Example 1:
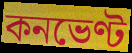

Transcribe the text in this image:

কনভেণ্ট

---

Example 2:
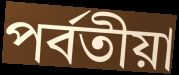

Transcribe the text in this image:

পৰ্বতীয়া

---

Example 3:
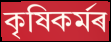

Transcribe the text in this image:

কৃষিকৰ্মৰ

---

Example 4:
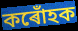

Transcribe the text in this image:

কৰোঁহক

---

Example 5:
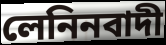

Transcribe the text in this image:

লেনিনবাদী